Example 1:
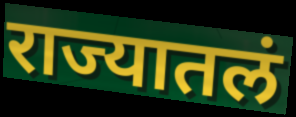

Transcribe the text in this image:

राज्यातलं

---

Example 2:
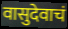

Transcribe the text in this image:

वासुदेवाचं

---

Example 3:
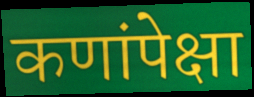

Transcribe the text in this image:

कणांपेक्षा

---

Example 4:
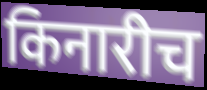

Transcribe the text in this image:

किनारीच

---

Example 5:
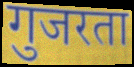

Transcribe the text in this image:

गुजरता